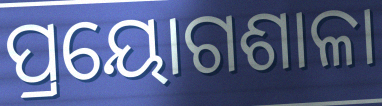
ପ୍ରୟୋଗଶାଳା